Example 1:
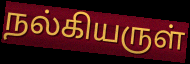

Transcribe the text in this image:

நல்கியருள்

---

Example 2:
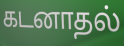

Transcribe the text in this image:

கடனாதல்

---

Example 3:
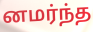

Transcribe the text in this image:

னமர்ந்த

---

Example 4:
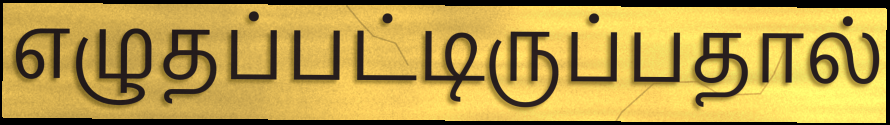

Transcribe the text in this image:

எழுதப்பட்டிருப்பதால்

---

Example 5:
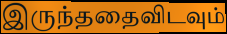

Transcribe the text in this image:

இருந்ததைவிடவும்